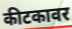
कीटकावर